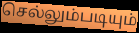
செல்லும்படியும்